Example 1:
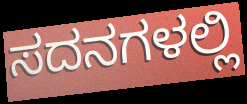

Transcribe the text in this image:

ಸದನಗಳಲ್ಲಿ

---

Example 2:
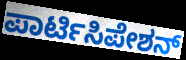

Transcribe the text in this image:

ಪಾರ್ಟಿಸಿಪೇಶನ್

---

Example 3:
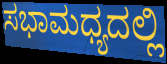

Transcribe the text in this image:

ಸಭಾಮಧ್ಯದಲ್ಲಿ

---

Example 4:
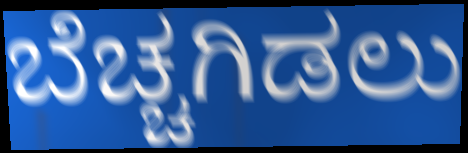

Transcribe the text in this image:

ಬೆಚ್ಚಗಿಡಲು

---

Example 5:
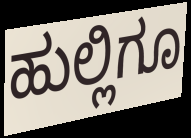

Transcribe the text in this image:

ಹುಲ್ಲಿಗೂ